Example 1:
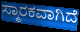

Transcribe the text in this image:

ಸ್ಮಾರಕವಾಗಿದೆ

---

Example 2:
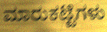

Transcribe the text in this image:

ಮಾರುಕಟ್ಟೆಗಳು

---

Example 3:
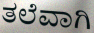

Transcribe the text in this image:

ತಲೆವಾಗಿ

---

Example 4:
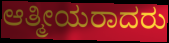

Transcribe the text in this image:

ಆತ್ಮೀಯರಾದರು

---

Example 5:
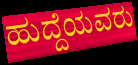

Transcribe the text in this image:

ಹುದ್ದೆಯವರು